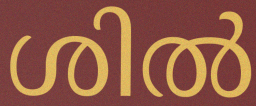
ശിൽ